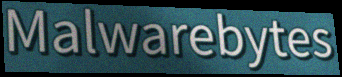
Malwarebytes